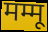
मम्मू